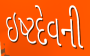
ઇષ્ટદેવની